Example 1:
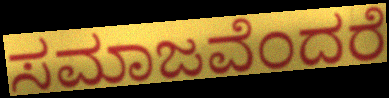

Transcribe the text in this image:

ಸಮಾಜವೆಂದರೆ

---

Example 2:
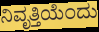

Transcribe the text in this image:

ನಿವೃತ್ತಿಯೆಂದು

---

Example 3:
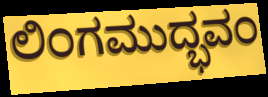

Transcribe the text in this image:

ಲಿಂಗಮುದ್ಭವಂ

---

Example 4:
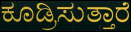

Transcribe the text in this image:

ಕೂಡ್ರಿಸುತ್ತಾರೆ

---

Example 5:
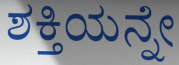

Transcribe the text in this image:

ಶಕ್ತಿಯನ್ನೇ